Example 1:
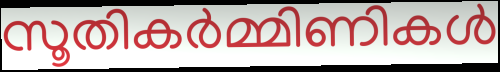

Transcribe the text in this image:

സൂതികർമ്മിണികൾ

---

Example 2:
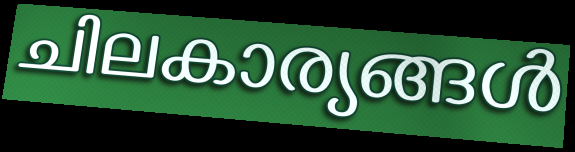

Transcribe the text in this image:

ചിലകാര്യങ്ങൾ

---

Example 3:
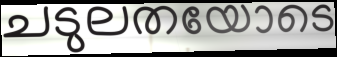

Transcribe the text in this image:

ചടുലതയോടെ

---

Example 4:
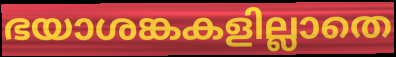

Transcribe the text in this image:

ഭയാശങ്കകളില്ലാതെ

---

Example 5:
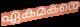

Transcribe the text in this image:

ഏകമകനെ